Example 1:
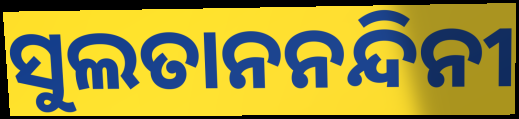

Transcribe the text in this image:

ସୁଲତାନନନ୍ଦିନୀ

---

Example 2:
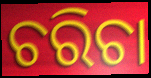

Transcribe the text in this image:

ଚରିଚା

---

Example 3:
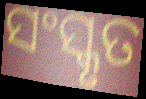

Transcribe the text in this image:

ସଂସ୍କୃତ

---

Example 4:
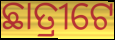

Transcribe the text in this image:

ଛାତ୍ରୀଟେ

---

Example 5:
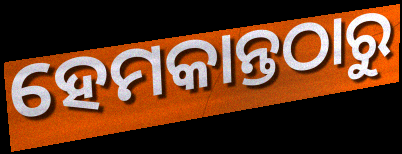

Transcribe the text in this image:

ହେମକାନ୍ତଠାରୁ